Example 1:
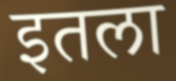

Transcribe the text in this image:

इतला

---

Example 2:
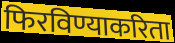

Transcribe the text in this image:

फिरविण्याकरिता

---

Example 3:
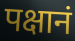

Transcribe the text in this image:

पक्षानं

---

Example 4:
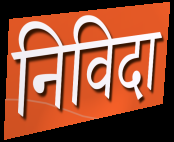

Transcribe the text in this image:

निविदा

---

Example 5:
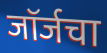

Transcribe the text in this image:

जॉर्जचा